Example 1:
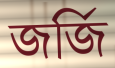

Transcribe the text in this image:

জর্জি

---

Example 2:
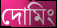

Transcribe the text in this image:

দোমিং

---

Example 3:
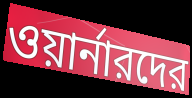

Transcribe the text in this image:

ওয়ার্নারদের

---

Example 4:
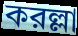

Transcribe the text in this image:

করল্লা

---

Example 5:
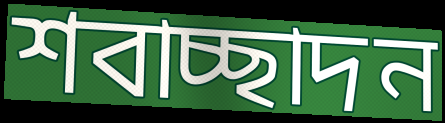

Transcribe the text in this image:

শবাচ্ছাদন